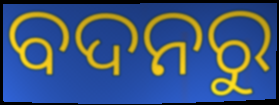
ବଦନରୁ